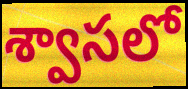
శ్వాసలో